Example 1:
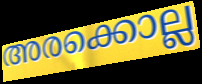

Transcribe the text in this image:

അരക്കൊല്ല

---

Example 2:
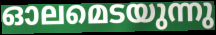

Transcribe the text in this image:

ഓലമെടയുന്നു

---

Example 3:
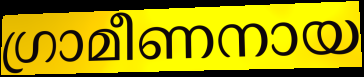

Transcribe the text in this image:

ഗ്രാമീണനായ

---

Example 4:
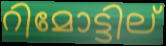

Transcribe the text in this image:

റിമോട്ടില്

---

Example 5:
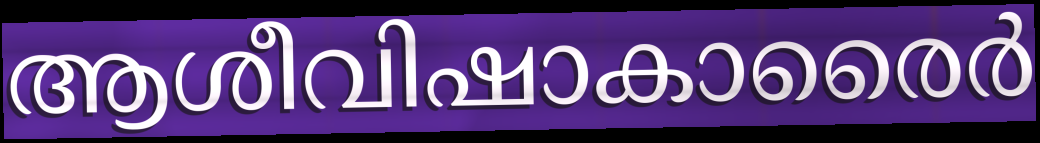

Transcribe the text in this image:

ആശീവിഷാകാരൈർ